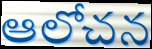
ఆలోచన